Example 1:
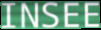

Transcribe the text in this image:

INSEE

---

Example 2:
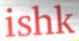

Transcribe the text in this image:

ishk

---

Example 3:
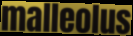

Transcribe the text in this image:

malleolus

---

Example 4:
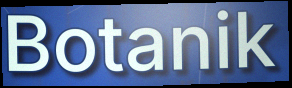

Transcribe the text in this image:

Botanik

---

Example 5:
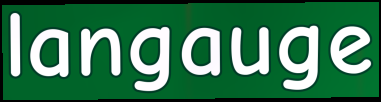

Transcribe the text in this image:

langauge